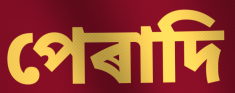
পেৰাদি